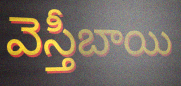
వెస్తీబాయి